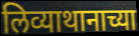
लिव्याथानाच्या